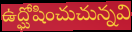
ఉద్ఘోషించుచున్నవి